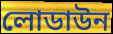
লোডাউন